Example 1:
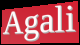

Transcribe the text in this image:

Agali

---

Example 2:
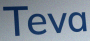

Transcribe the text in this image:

Teva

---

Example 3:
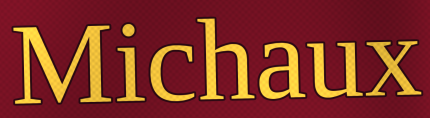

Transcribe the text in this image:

Michaux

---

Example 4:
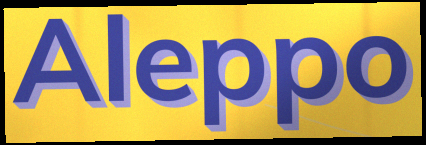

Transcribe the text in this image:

Aleppo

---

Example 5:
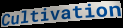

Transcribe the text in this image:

Cultivation